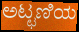
ಅಟ್ಟಣಿಯ